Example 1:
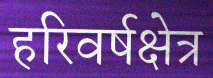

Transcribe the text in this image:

हरिवर्षक्षेत्र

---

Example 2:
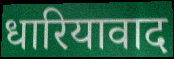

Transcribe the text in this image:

धारियावाद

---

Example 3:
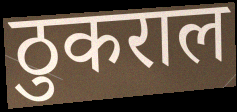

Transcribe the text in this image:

ठुकराल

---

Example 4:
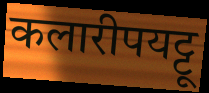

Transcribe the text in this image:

कलारीपयट्टू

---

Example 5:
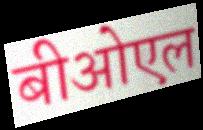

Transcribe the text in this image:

बीओएल